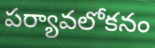
పర్యావలోకనం